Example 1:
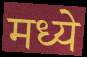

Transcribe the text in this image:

मध्ये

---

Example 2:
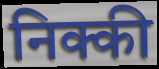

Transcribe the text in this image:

निक्की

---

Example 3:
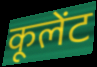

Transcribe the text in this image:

कूलेंट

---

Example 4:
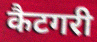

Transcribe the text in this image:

कैटगरी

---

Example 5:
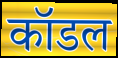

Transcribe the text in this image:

कॉडल